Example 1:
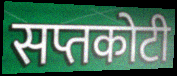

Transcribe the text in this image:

सप्तकोटी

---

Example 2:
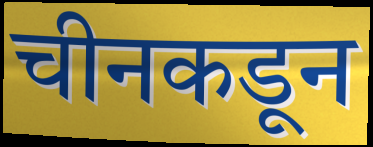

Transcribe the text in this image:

चीनकडून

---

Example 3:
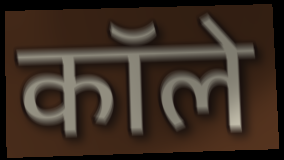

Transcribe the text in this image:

कॉले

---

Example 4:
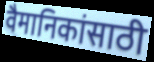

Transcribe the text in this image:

वैमानिकांसाठी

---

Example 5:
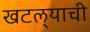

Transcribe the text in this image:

खटल्याची